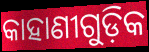
କାହାଣୀଗୁଡ଼ିକ